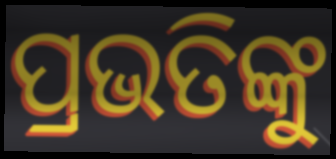
ପ୍ରଭତିଙ୍କୁ